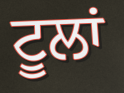
ਟੂਲਾਂ